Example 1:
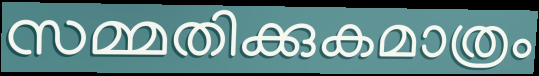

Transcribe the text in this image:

സമ്മതിക്കുകമാത്രം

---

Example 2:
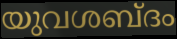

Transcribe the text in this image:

യുവശബ്ദം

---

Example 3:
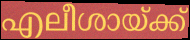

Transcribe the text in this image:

എലീശായ്ക്ക്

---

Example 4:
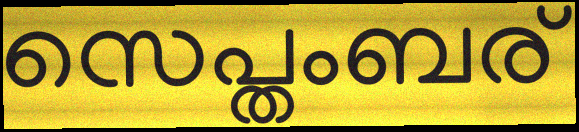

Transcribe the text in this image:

സെപ്തംബര്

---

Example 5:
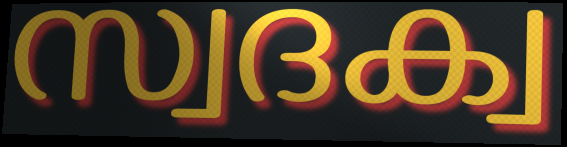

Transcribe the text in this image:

സ്വദക്വ